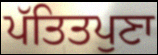
ਪੱਤਿਤਪੁਣਾ